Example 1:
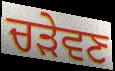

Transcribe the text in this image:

ਚੜੇਵਣ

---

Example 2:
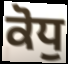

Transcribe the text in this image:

ਕੋਧੁ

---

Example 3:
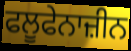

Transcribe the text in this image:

ਫਲੂਫੇਨਾਜ਼ੀਨ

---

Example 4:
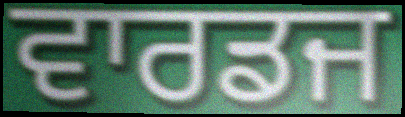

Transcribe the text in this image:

ਵਾਰਡਜ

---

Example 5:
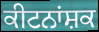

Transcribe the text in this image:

ਕੀਟਨਾਂਸ਼ਕ